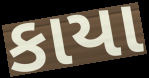
કાયા